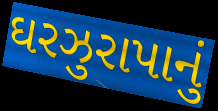
ઘરઝુરાપાનું